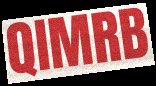
QIMRB